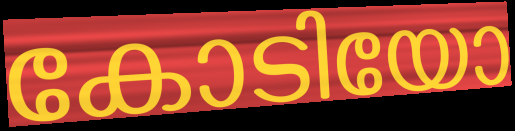
കോടിയോ